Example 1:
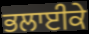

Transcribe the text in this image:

ਭਲਾਈਕੇ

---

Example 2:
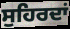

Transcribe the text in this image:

ਸੁਹਿਰਦਾਂ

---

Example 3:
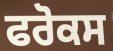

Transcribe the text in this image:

ਫਰੋਕਸ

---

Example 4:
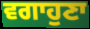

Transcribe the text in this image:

ਵਗਾਹੁਣਾ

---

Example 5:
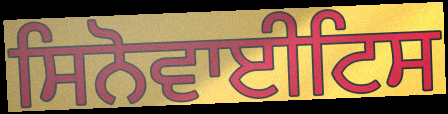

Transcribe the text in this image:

ਸਿਨੋਵਾਈਟਿਸ